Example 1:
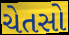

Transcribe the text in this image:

ચેતસો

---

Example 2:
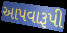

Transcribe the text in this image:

આપવારૂપી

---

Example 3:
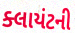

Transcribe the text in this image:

ક્લાયંટની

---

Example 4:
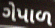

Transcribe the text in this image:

ગેપાળ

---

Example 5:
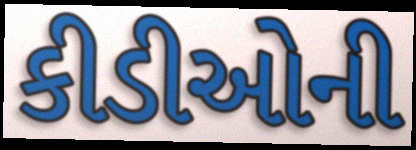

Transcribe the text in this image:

કીડીઓની